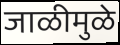
जाळीमुळे